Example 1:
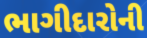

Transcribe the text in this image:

ભાગીદારોની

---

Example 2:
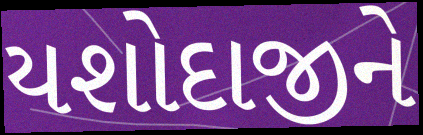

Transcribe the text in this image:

યશોદાજીને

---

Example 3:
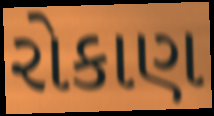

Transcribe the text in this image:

રોકાણ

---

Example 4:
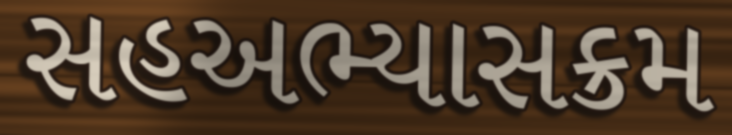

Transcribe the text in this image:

સહઅભ્યાસક્રમ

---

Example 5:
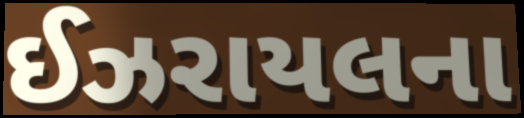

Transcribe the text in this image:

ઈઝરાયલના